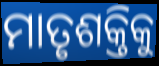
ମାତୃଶକ୍ତିକୁ